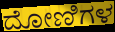
ದೋಣಿಗಳ